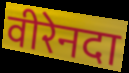
वीरेनदा